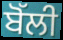
ਬੋੱਲੀ